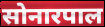
सोनारपाल